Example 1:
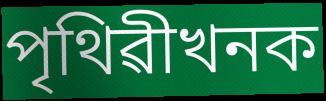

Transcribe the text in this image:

পৃথিৱীখনক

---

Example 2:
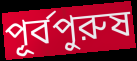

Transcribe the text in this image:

পূৰ্বপুৰুষ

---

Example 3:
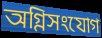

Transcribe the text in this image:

অগ্নিসংযোগ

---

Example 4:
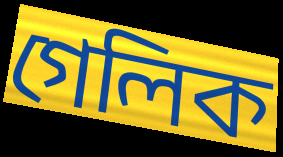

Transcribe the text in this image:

গেলিক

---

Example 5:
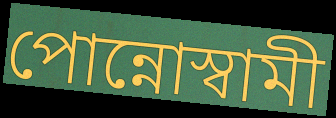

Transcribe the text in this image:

পোন্নোস্বামী